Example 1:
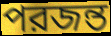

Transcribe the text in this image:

পরজন্ত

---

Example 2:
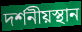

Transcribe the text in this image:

দর্শনীয়স্থান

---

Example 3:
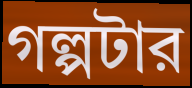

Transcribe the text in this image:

গল্পটার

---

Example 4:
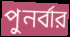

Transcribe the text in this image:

পুনর্বার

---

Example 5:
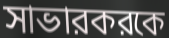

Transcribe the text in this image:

সাভারকরকে